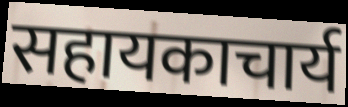
सहायकाचार्य